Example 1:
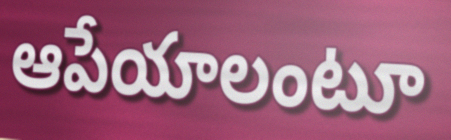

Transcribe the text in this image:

ఆపేయాలంటూ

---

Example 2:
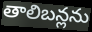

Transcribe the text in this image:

తాలిబన్లను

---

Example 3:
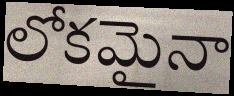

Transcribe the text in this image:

లోకమైనా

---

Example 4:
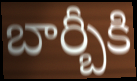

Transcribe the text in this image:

బార్బీకి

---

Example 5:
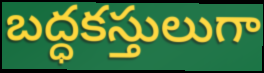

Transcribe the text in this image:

బద్ధకస్తులుగా